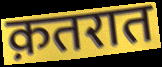
क़तरात